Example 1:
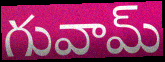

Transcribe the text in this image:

గువామ్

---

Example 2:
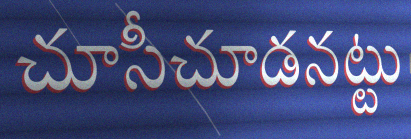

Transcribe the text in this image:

చూసీచూడనట్టు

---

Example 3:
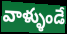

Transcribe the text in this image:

వాళ్ళుండే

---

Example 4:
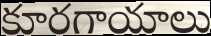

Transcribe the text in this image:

కూరగాయాలు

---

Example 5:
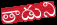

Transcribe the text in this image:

తాడుని